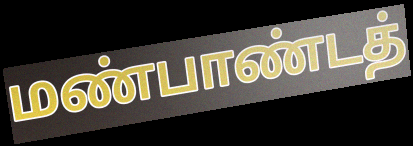
மண்பாண்டத்